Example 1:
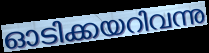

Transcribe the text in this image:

ഓടിക്കയറിവന്നു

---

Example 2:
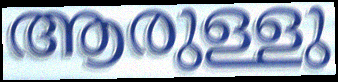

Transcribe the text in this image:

ആരുള്ളു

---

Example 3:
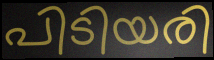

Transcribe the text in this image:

പിടിയരി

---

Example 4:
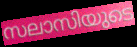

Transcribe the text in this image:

സലാസിയുടെ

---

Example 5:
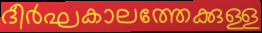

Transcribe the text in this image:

ദീർഘകാലത്തേക്കുള്ള